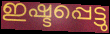
ഇഷ്ടപ്പെട്ടു